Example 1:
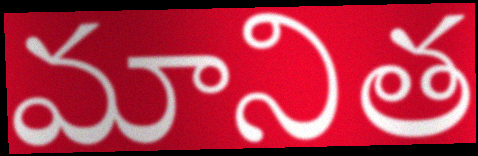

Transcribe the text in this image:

మానిత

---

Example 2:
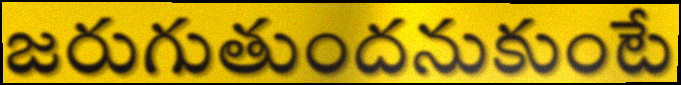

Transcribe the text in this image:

జరుగుతుందనుకుంటే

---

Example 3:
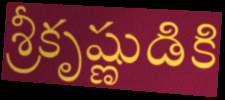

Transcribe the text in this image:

శ్రీకృష్ణుడికి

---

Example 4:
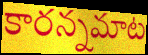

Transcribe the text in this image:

కారన్నమాట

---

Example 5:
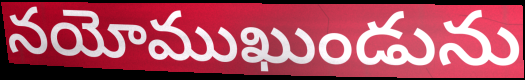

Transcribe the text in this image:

నయోముఖుండును